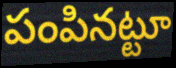
పంపినట్టూ